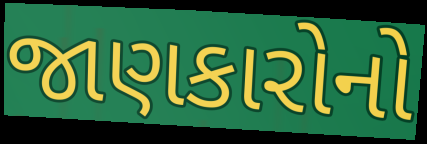
જાણકારોનો